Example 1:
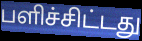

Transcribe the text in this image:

பளிச்சிட்டது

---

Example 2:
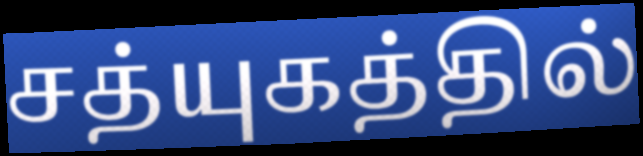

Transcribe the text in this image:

சத்யுகத்தில்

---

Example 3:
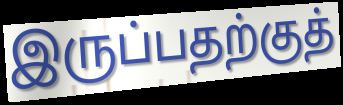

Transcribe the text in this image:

இருப்பதற்குத்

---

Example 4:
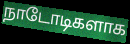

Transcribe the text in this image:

நாடோடிகளாக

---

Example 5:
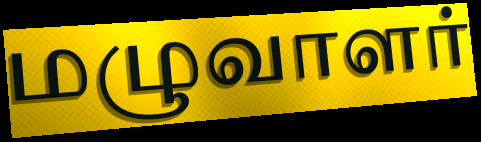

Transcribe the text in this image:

மழுவாளர்